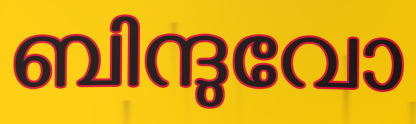
ബിന്ദുവോ